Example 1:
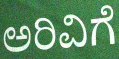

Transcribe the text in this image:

ಅರಿವಿಗೆ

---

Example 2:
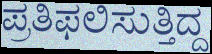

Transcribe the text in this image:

ಪ್ರತಿಫಲಿಸುತ್ತಿದ್ದ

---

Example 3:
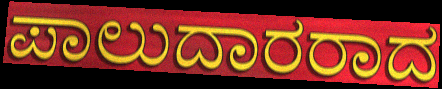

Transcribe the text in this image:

ಪಾಲುದಾರರಾದ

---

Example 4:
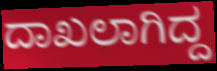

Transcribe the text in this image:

ದಾಖಲಾಗಿದ್ದ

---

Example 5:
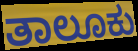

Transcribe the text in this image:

ತಾಲೂಕು